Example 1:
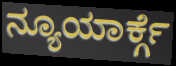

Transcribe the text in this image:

ನ್ಯೂಯಾರ್ಕ್ಗೆ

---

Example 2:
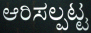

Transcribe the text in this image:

ಆರಿಸಲ್ಪಟ್ಟ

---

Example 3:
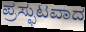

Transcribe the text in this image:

ಪ್ರಸ್ಫುಟವಾದ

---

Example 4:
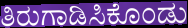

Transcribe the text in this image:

ತಿರುಗಾಡಿಸಿಕೊಂಡು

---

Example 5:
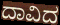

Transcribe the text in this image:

ದಾವಿದ